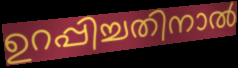
ഉറപ്പിച്ചതിനാൽ